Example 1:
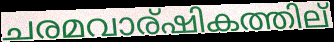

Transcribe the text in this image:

ചരമവാര്ഷികത്തില്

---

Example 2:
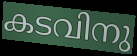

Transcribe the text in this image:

കടവിനു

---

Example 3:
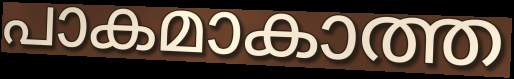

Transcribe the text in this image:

പാകമാകാത്ത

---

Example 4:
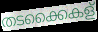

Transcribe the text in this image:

തടക്കൈകള്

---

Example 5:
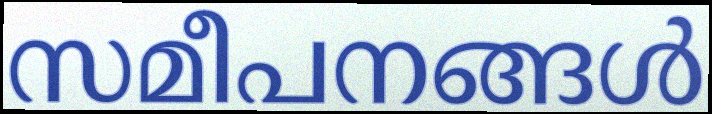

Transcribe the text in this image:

സമീപനങ്ങൾ